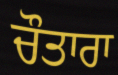
ਚੌਤਾਰਾ